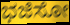
ಭಜಿಸೋ